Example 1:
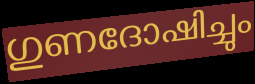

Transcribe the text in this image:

ഗുണദോഷിച്ചും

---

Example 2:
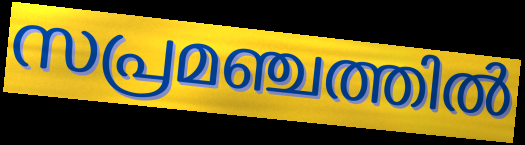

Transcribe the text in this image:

സപ്രമഞ്ചത്തിൽ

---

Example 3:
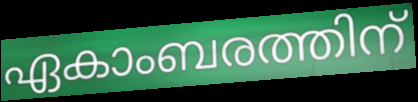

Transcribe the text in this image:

ഏകാംബരത്തിന്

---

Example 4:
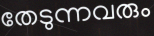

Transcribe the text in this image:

തേടുന്നവരും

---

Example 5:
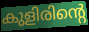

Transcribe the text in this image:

കുളിരിന്റെ